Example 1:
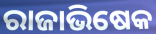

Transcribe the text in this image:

ରାଜାଭିଷେକ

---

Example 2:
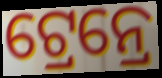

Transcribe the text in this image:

ଟ୍ରେନ୍ରେ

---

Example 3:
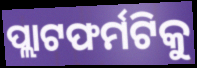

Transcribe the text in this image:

ପ୍ଲାଟଫର୍ମଟିକୁ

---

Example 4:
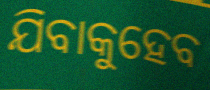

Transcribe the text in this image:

ଯିବାକୁହେବ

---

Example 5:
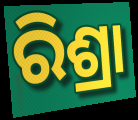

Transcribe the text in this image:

ରିଶ୍ରା